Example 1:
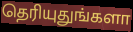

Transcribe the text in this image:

தெரியுதுங்களா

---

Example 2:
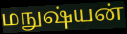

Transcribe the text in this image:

மநுஷ்யன்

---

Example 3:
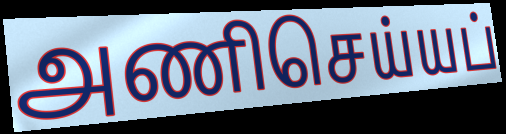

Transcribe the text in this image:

அணிசெய்யப்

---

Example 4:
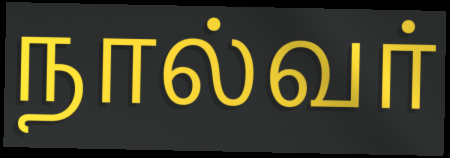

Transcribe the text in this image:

நால்வர்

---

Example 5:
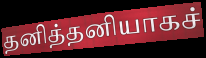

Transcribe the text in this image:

தனித்தனியாகச்